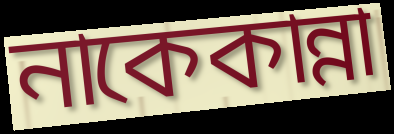
নাকেকান্না